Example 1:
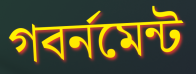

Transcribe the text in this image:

গবর্নমেন্ট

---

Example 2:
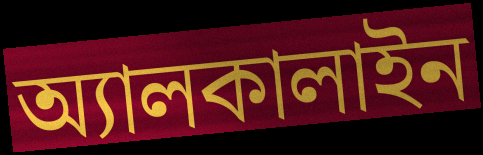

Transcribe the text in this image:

অ্যালকালাইন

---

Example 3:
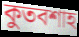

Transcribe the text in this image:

কুতবশাহ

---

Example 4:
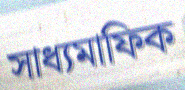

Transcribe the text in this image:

সাধ্যমাফিক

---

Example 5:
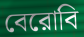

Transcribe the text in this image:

বেরোবি